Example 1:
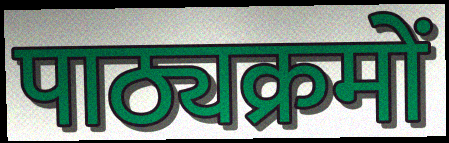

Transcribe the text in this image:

पाठ्यक्रमों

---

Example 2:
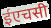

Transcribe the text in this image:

ईएचसी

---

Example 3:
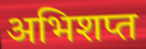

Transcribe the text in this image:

अभिशप्त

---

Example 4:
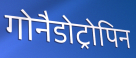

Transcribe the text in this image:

गोनैडोट्रोपिन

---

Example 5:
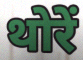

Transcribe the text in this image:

थोरें